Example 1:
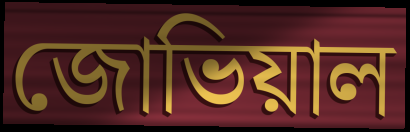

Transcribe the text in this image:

জোভিয়াল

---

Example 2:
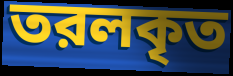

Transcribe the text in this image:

তরলকৃত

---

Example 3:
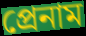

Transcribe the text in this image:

প্রেনাম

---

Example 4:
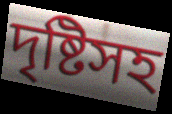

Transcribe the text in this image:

দৃষ্টিসহ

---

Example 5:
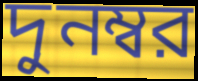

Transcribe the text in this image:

দুনম্বর